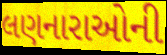
લણનારાઓની